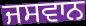
ਜਸਵਾਨ